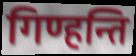
गिण्हन्ति